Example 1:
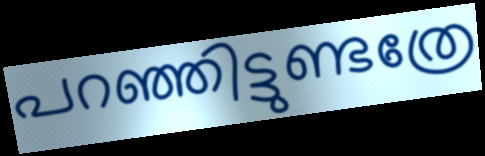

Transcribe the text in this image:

പറഞ്ഞിട്ടുണ്ടത്രേ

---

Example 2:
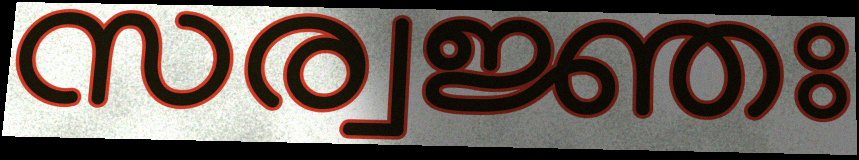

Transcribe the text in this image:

സര്വജ്ഞഃ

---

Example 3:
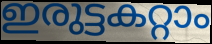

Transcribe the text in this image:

ഇരുട്ടകറ്റാം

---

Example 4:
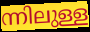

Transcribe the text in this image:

ന്നിലുള്ള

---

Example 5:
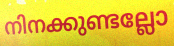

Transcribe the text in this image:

നിനക്കുണ്ടല്ലോ